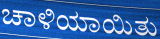
ಚಾಳಿಯಾಯಿತು